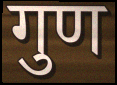
गुण